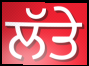
ਲੱਤੇ